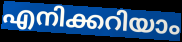
എനിക്കറിയാം